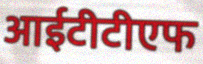
आईटीटीएफ